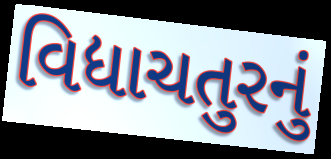
વિદ્યાચતુરનું